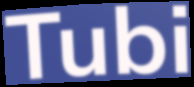
Tubi